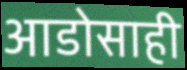
आडोसाही